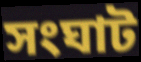
সংঘাট